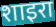
शाइरा